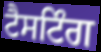
ਟੈਸਟਿੰਗ